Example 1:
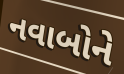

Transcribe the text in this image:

નવાબોને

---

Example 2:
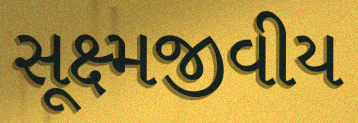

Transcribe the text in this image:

સૂક્ષ્મજીવીય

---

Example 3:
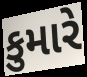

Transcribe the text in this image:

કુમારે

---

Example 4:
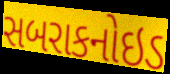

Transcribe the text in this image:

સબરાકનોઇડ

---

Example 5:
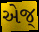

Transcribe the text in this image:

એજ્